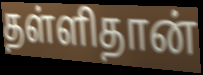
தள்ளிதான்